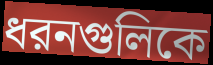
ধরনগুলিকে